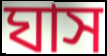
ঘাস